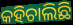
କହିଚାଲିଛି